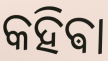
କହିଵା